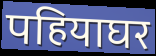
पहियाघर